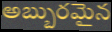
అబ్బురమైన